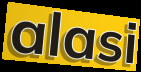
alasi